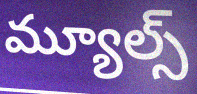
మ్యూల్స్